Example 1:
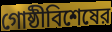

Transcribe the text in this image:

গোষ্ঠীবিশেষের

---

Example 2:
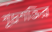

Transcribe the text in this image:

শূদ্রশক্তির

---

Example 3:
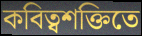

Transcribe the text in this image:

কবিত্বশক্তিতে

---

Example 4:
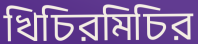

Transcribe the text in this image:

খিচিরমিচির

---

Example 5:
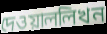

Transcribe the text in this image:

দেওয়াললিখন